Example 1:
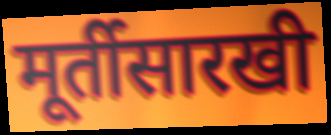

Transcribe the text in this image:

मूर्तीसारखी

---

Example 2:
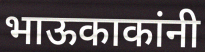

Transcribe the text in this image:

भाऊकाकांनी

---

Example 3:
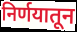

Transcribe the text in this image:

निर्णयातून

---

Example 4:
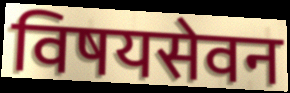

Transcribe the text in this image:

विषयसेवन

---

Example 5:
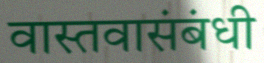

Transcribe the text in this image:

वास्तवासंबंधी